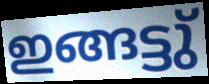
ഇങ്ങട്ടു്